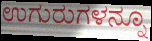
ಉಗುರುಗಳನ್ನೂ